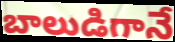
బాలుడిగానే